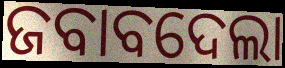
ଜବାବଦେଲା